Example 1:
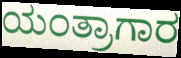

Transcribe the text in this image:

ಯಂತ್ರಾಗಾರ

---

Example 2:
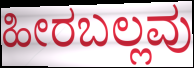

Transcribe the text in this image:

ಹೀರಬಲ್ಲವು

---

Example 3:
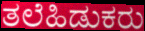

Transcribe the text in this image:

ತಲೆಹಿಡುಕರು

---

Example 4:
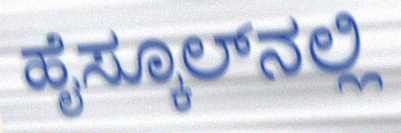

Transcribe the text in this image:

ಹೈಸ್ಕೂಲ್‌ನಲ್ಲಿ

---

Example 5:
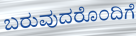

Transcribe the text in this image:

ಬರುವುದರೊಂದಿಗೆ